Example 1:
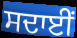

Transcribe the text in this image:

ਸਦਾਈਂ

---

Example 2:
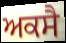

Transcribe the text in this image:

ਅਕਸੈ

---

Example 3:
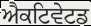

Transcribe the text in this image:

ਐਕਟਿਵੇਟਡ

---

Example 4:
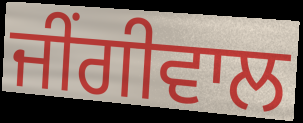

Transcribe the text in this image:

ਜੀਂਗੀਵਾਲ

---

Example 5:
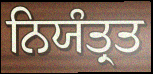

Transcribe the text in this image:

ਨਿਯੰਤ੍ਰਤ